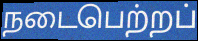
நடைபெற்றப்